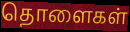
தொளைகள்